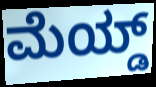
ಮೆಯ್ಡ್